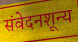
संवेदनशून्य